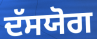
ਦੱਸਯੋਗ